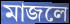
মাজলে